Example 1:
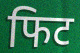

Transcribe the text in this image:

फिट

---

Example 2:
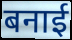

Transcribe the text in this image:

बनाई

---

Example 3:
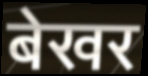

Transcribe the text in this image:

बेखर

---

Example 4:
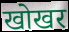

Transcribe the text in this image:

खोखर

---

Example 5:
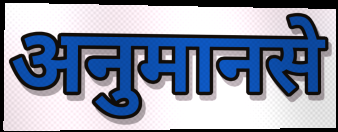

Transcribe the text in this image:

अनुमानसे